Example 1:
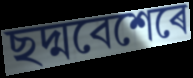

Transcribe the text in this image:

ছদ্মবেশেৰে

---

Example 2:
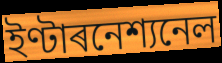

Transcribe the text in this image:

ইণ্টাৰনেশ্যনেল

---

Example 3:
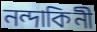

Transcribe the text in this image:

নন্দাকিনী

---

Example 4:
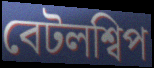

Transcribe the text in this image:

বেটলশ্বিপ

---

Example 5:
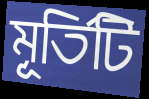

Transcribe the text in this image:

মূৰ্তিটি